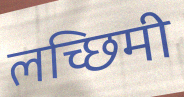
लच्छिमी